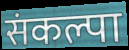
संकल्पा